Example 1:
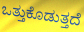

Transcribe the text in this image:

ಒತ್ತುಕೊಡುತ್ತದೆ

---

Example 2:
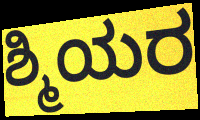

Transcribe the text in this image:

ಶ್ಮಿಯರ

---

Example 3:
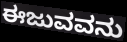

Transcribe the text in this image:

ಈಜುವವನು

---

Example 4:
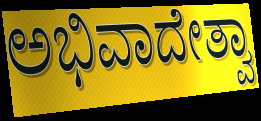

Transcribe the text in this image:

ಅಭಿವಾದೇತ್ವಾ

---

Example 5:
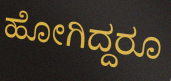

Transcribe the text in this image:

ಹೋಗಿದ್ದರೂ